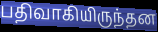
பதிவாகியிருந்தன